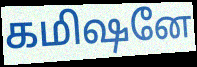
கமிஷனே